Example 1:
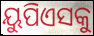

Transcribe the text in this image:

ୟୁପିଏସକୁ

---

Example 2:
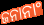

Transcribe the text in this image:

ଜନାନାଂ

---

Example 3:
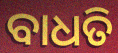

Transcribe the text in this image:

ବାଧତି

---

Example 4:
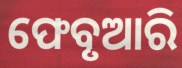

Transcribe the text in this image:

ଫେବୃଆରି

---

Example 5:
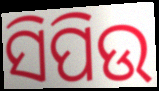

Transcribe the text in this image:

ସିପିଉ